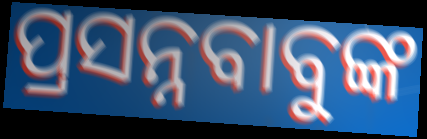
ପ୍ରସନ୍ନବାବୁଙ୍କ